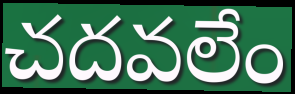
చదవలేం